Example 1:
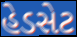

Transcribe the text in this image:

હેડસેટ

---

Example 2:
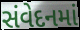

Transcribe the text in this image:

સંવેદનમાં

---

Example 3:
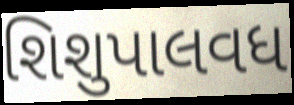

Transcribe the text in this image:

શિશુપાલવધ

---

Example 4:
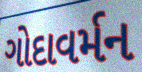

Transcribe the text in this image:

ગોદાવર્મન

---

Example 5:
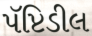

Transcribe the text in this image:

પૅપ્ટિડીલ